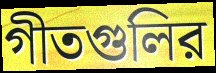
গীতগুলির